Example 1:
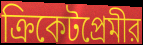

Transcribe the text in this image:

ক্রিকেটপ্রেমীর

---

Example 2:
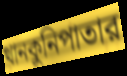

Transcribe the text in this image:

থানকুনিপাতার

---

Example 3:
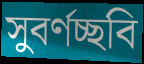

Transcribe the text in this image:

সুবর্ণচ্ছবি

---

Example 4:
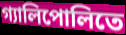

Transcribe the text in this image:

গ্যালিপোলিতে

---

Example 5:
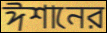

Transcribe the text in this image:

ঈশানের